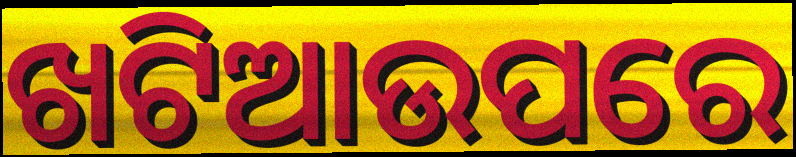
ଖଟିଆଉପରେ